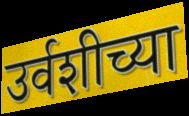
उर्वशीच्या